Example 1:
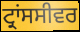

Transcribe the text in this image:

ਟ੍ਰਾਂਸਸੀਵਰ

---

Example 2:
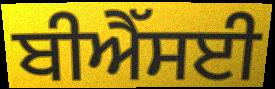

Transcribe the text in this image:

ਬੀਐੱਸਈ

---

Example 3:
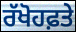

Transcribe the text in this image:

ਰੱਖੋਹਫ਼ਤੇ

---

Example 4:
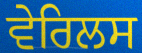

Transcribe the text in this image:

ਵੇਰਿਲਸ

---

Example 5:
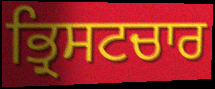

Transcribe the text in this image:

ਭ੍ਰਿਸਟਚਾਰ